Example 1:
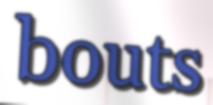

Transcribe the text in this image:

bouts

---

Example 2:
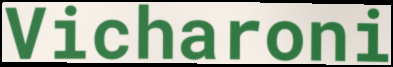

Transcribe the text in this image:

Vicharoni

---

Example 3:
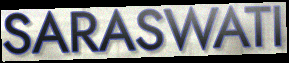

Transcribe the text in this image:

SARASWATI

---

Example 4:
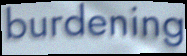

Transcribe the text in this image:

burdening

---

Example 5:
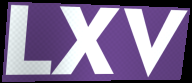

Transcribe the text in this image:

LXV